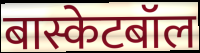
बास्केटबॉल